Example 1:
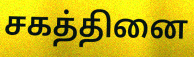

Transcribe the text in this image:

சகத்தினை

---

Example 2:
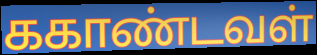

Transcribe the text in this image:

ககாண்டவள்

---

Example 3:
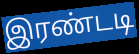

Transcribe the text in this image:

இரண்டடி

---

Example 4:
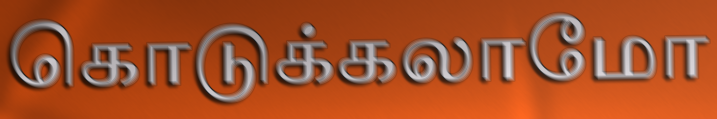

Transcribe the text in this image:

கொடுக்கலாமோ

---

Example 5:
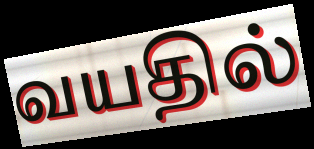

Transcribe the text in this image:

வயதில்